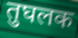
तुघलक